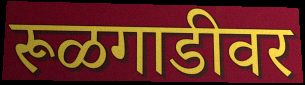
रूळगाडीवर